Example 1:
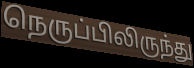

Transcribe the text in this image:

நெருப்பிலிருந்து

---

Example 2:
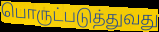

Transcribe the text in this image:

பொருட்படுத்துவது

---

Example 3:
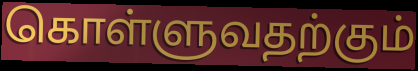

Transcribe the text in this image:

கொள்ளுவதற்கும்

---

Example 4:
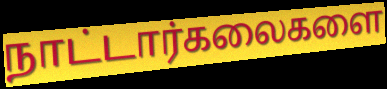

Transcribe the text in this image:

நாட்டார்கலைகளை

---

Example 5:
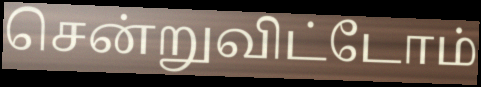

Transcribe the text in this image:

சென்றுவிட்டோம்